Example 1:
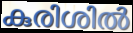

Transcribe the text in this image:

കുരിശിൽ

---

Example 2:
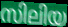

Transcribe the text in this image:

സിലിയ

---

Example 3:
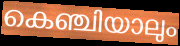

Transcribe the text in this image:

കെഞ്ചിയാലും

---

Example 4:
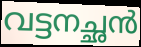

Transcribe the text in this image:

വട്ടനച്ഛൻ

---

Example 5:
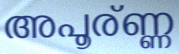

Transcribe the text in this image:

അപൂര്ണ്ണ